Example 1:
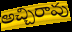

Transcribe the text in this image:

అచ్చిరావు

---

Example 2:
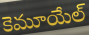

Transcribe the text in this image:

కెమూయేల్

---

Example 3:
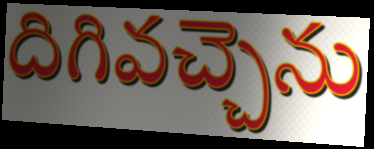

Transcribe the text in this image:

దిగివచ్చెను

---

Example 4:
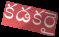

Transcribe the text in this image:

కడకరై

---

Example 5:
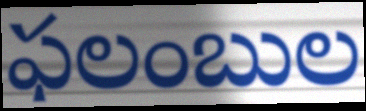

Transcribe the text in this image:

ఫలంబుల